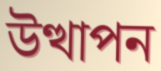
উত্থাপন